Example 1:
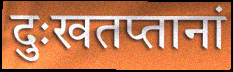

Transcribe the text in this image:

दुःखतप्तानां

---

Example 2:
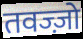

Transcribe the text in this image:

तवज्ज़ो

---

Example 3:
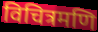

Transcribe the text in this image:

विचित्रमणि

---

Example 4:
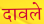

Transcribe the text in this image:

दावले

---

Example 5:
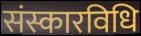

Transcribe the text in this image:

संस्कारविधि